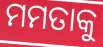
ମମତାକୁ